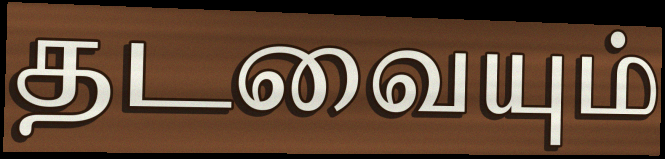
தடவையும்